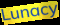
Lunacy